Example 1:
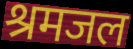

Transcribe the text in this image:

श्रमजल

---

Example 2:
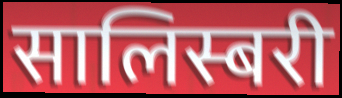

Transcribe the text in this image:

सालिस्बरी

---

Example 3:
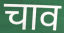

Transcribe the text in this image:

चाव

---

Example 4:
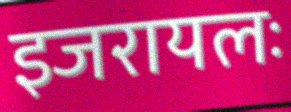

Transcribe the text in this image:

इजरायलः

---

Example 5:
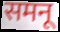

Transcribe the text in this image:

समनू